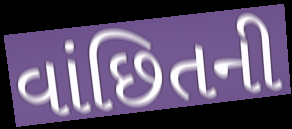
વાંછિતની